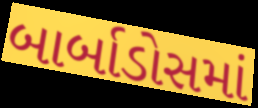
બાર્બાડોસમાં